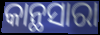
କାନ୍ଥସାରା